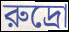
রুদ্রো